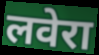
लवेरा